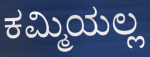
ಕಮ್ಮಿಯಲ್ಲ